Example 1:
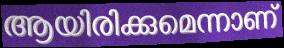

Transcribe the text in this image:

ആയിരിക്കുമെന്നാണ്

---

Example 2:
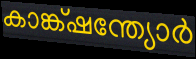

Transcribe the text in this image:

കാങ്ക്ഷന്ത്യോർ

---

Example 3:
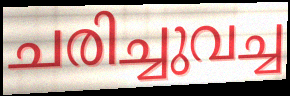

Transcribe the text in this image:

ചരിച്ചുവച്ച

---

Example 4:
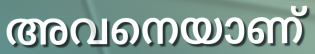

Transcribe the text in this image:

അവനെയാണ്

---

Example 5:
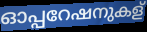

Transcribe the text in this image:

ഓപ്പറേഷനുകള്